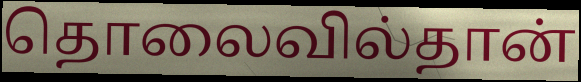
தொலைவில்தான்